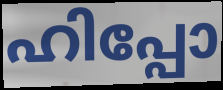
ഹിപ്പോ